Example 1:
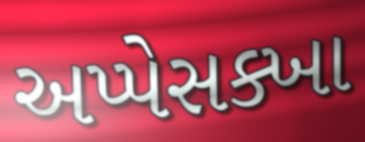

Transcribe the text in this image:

અપ્પેસક્ખા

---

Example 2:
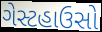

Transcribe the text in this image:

ગેસ્ટહાઉસો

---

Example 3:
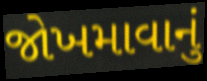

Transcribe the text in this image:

જોખમાવાનું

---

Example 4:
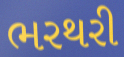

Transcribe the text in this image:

ભરથરી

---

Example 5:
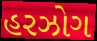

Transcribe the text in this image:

હરઝોગ